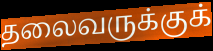
தலைவருக்குக்